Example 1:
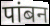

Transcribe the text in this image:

पांबन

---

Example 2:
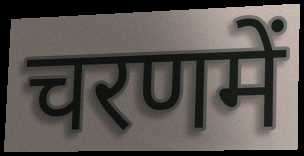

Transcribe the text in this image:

चरणमें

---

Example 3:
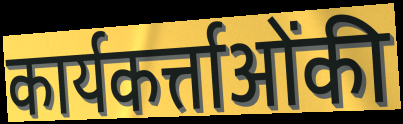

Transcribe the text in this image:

कार्यकर्त्ताओंकी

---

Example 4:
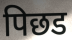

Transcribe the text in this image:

पिछड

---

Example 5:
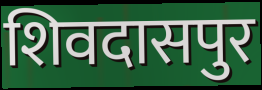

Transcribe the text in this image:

शिवदासपुर